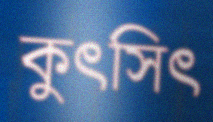
কুৎসিৎ